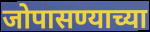
जोपासण्याच्या